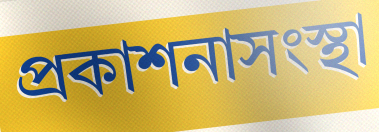
প্রকাশনাসংস্থা